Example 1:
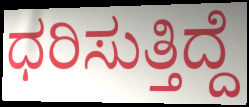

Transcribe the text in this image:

ಧರಿಸುತ್ತಿದ್ದೆ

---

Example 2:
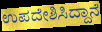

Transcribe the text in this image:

ಉಪದೇಶಿಸಿದ್ದಾನೆ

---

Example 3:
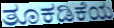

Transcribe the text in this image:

ತೂಕಡಿಕೆಯ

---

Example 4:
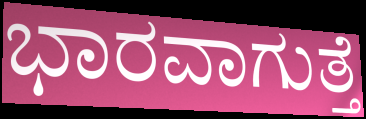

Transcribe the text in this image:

ಭಾರವಾಗುತ್ತೆ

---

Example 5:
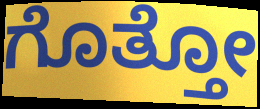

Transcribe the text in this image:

ಗೊತ್ತೋ